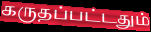
கருதப்பட்டதும்